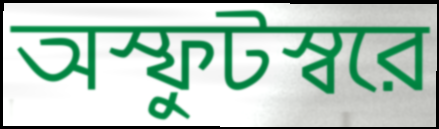
অস্ফুটস্বরে